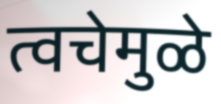
त्वचेमुळे